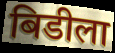
बिडीला